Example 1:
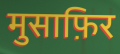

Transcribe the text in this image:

मुसाफ़िर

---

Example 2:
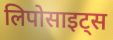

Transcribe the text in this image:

लिपोसाइट्स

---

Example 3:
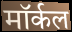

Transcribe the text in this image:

मॉर्कल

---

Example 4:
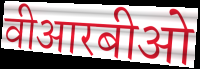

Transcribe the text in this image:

वीआरबीओ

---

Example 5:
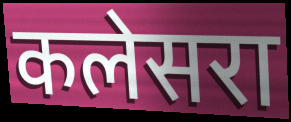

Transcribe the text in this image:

कलेसरा